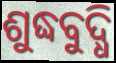
ଶୁଦ୍ଧବୁଦ୍ଧି